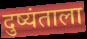
दुष्यंताला